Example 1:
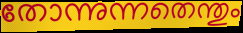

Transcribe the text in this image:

തോന്നുന്നതെന്തും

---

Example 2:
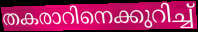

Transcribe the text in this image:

തകരാറിനെക്കുറിച്ച്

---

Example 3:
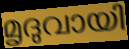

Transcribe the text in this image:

മൃദുവായി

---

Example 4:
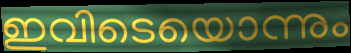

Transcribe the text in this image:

ഇവിടെയൊന്നും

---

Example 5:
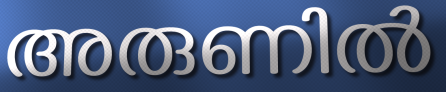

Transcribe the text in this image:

അരുണിൽ